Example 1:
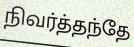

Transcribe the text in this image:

நிவர்த்தந்தே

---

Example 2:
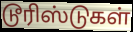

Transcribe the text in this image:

டூரிஸ்டுகள்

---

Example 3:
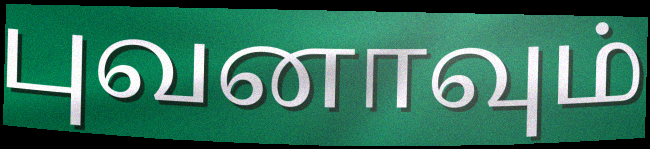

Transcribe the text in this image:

புவனாவும்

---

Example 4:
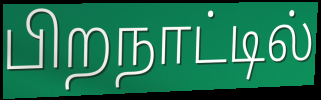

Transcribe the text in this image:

பிறநாட்டில்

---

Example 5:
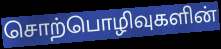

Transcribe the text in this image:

சொற்பொழிவுகளின்